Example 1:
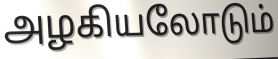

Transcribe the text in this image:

அழகியலோடும்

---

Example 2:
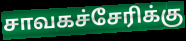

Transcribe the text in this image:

சாவகச்சேரிக்கு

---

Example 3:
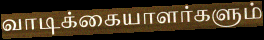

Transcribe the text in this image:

வாடிக்கையாளர்களும்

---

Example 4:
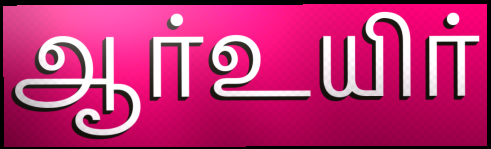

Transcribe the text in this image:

ஆர்உயிர்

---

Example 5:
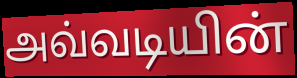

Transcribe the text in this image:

அவ்வடியின்